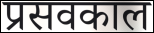
प्रसवकाल